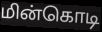
மின்கொடி